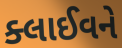
ક્લાઈવને